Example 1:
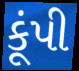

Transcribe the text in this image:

કૂંપી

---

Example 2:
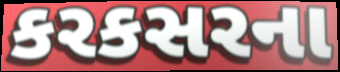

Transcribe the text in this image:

કરકસરના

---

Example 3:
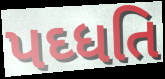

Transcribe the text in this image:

પઘ્ધતિ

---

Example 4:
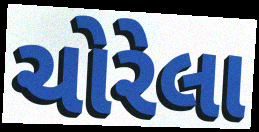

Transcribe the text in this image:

ચોરેલા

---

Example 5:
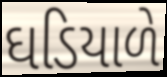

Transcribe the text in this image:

ઘડિયાળે